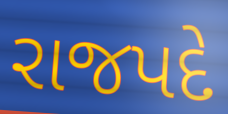
રાજપદે